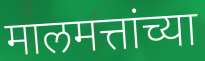
मालमत्तांच्या